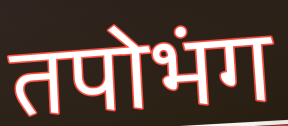
तपोभंग